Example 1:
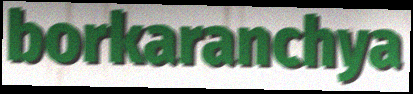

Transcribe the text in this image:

borkaranchya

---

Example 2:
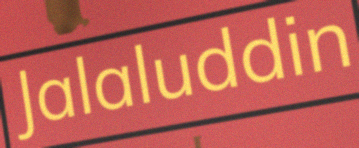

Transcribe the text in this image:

Jalaluddin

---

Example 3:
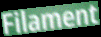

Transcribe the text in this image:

Filament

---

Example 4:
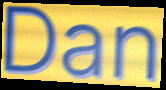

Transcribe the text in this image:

Dan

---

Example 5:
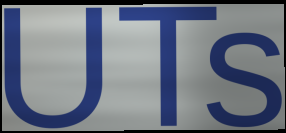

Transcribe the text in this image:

UTs